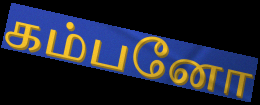
கம்பனோ